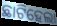
ଛାଟିହେଲା